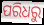
ପରିଧରୁ